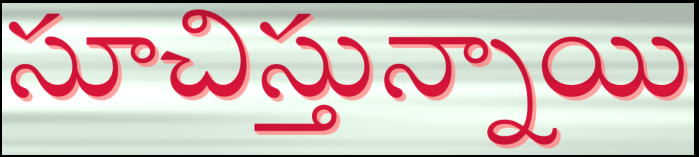
సూచిస్తున్నాయి